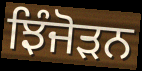
ਝਿੰਜੋੜਨ